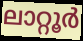
ലാറ്റൂർ